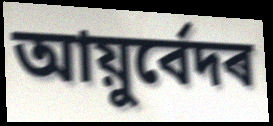
আয়ুৰ্বেদৰ